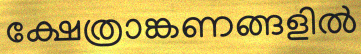
ക്ഷേത്രാങ്കണങ്ങളിൽ